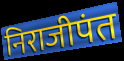
निराजीपंत